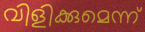
വിളിക്കുമെന്ന്